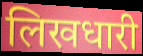
लिखधारी